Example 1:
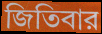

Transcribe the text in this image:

জিতিবার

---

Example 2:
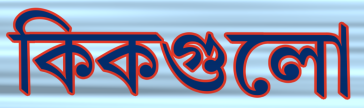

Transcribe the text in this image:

কিকগুলো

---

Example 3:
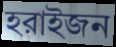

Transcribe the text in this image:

হরাইজন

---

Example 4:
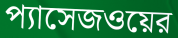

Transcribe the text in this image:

প্যাসেজওয়ের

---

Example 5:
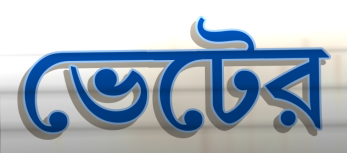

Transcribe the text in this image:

ভেটের